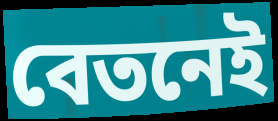
বেতনেই